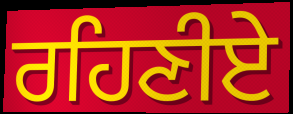
ਰਹਿਣੀਏ